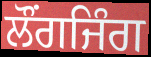
ਲੌਂਗਜਿੰਗ